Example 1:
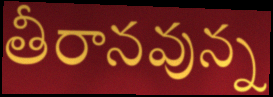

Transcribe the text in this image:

తీరానవున్న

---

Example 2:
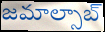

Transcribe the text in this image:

జమాల్సాబ్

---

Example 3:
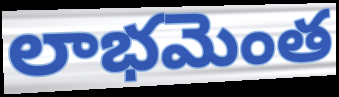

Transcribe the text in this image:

లాభమెంత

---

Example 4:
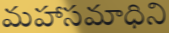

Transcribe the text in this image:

మహాసమాధిని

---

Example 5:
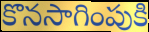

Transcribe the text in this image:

కొనసాగింపుకి